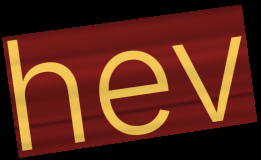
hev